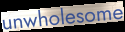
unwholesome